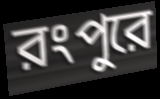
রংপুরে